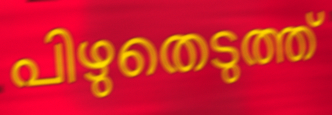
പിഴുതെടുത്ത്